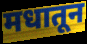
मधातून